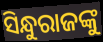
ସିନ୍ଧୁରାଜଙ୍କୁ